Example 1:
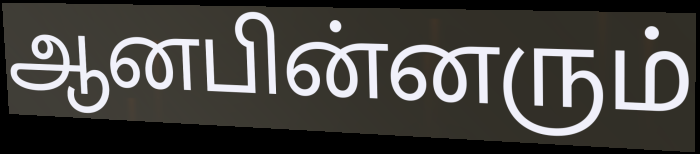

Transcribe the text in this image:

ஆனபின்னரும்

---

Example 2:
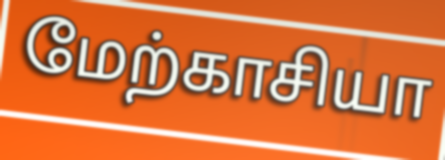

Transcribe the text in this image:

மேற்காசியா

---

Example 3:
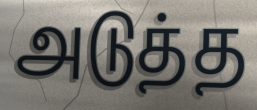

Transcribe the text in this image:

அடுத்த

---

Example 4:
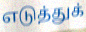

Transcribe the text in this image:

எடுத்துக்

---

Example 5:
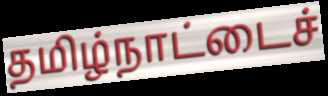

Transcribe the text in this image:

தமிழ்நாட்டைச்